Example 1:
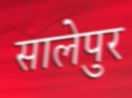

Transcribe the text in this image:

सालेपुर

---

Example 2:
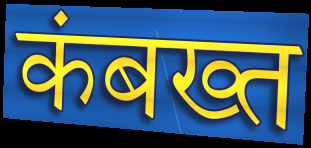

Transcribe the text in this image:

कंबख्त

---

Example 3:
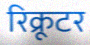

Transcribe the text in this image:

रिक्रूटर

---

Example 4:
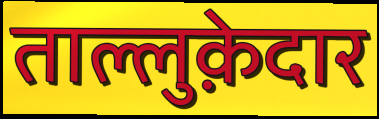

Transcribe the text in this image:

ताल्लुक़ेदार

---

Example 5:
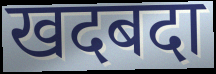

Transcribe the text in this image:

खदबदा